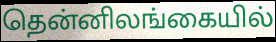
தென்னிலங்கையில்